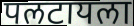
पलटायला